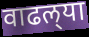
वाढल्या